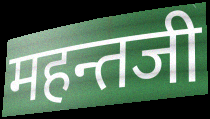
महन्तजी